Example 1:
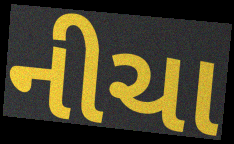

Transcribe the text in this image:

નીચા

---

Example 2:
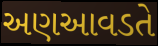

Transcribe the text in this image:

અણઆવડતે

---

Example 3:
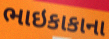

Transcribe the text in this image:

ભાઇકાકાના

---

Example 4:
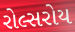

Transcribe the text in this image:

રોલ્સરોય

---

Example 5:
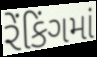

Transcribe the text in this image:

રેંકિંગમાં